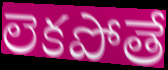
లెకపోతే